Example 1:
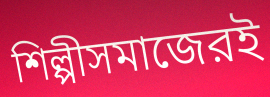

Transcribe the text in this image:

শিল্পীসমাজেরই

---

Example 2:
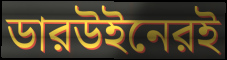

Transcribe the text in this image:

ডারউইনেরই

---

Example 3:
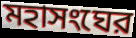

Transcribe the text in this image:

মহাসংঘের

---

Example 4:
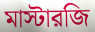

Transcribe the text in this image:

মাস্টারজি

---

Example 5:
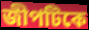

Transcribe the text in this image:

জীপটিকে